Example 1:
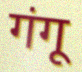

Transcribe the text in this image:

गंगू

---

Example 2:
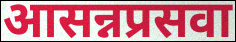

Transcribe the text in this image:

आसन्नप्रसवा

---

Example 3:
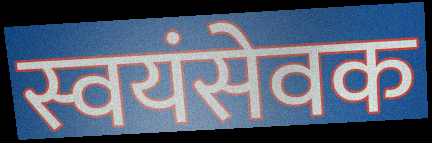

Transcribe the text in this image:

स्वयंसेवक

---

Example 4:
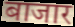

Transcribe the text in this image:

बाजार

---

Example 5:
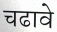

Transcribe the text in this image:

चढावे